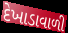
દેખાડાવાળી